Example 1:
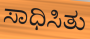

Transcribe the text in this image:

ಸಾಧಿಸಿತು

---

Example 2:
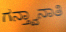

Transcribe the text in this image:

ಗನ್ತ್ವಾನಾತಿ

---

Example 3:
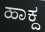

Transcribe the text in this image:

ಹಾಕ್ದ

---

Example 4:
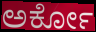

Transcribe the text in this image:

ಅರ್ಕೋ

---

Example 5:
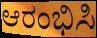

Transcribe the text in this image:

ಆರಂಭಿಸಿ